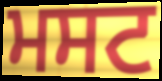
ਮਸਟ